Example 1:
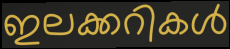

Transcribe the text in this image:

ഇലക്കറികൾ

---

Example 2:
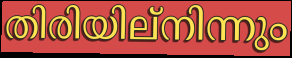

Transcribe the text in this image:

തിരിയില്നിന്നും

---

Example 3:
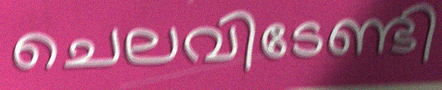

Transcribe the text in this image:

ചെലവിടേണ്ടി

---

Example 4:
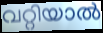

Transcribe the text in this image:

വറ്റിയാൽ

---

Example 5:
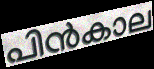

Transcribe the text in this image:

പിൻകാല